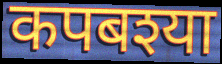
कपबश्या